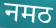
नमठ